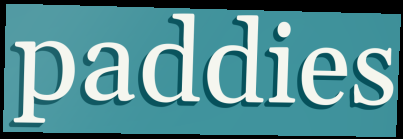
paddies